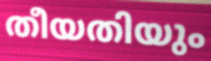
തീയതിയും